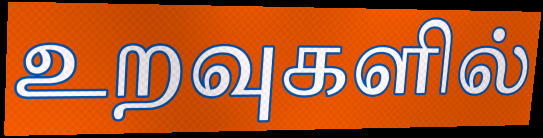
உறவுகளில்